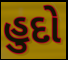
હુદો